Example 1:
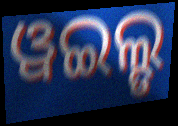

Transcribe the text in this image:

ୱଇଲ୍ଡ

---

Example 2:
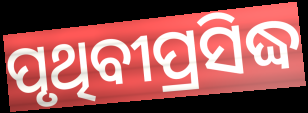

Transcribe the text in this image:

ପୃଥିବୀପ୍ରସିଦ୍ଧ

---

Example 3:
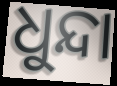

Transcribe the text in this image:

ଧୁନ୍ଦା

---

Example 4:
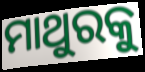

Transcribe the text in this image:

ମାଥୁରକୁ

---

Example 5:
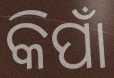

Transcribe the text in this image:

କିପାଁ